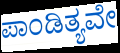
ಪಾಂಡಿತ್ಯವೇ